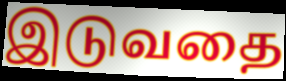
இடுவதை